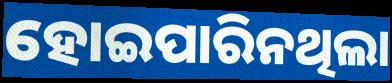
ହୋଇପାରିନଥିଲା